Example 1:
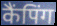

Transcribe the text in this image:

कैंपिंग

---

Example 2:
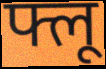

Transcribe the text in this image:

फ्लू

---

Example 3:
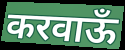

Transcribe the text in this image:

करवाऊँ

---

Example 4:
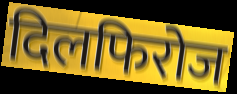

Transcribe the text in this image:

दिलफिरोज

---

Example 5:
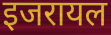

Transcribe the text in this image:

इजरायल